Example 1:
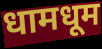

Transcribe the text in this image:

धामधूम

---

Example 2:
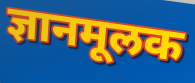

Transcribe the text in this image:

ज्ञानमूलक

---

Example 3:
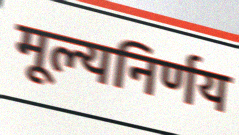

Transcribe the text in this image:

मूल्यनिर्णय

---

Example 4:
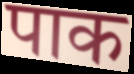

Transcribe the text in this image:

पाक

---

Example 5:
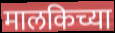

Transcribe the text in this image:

मालकिच्या